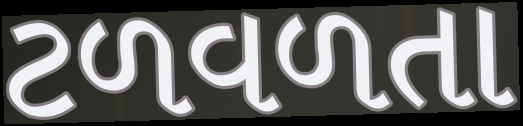
ટળવળતા